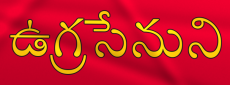
ఉగ్రసేనుని